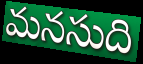
మనసుది